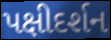
પક્ષીદર્શન